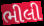
ભીલી